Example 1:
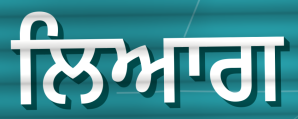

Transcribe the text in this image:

ਲਿਆਗ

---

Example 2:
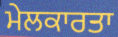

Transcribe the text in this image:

ਮੇਲਕਾਰਤਾ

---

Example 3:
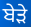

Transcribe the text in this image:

ਬੇੜੇ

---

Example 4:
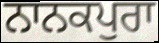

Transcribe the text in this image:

ਨਾਨਕਪੁਰਾ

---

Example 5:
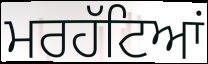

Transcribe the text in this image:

ਮਰਹੱਟਿਆਂ